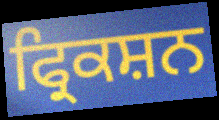
ਫ੍ਰਿਕਸ਼ਨ